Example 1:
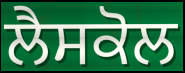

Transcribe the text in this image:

ਲੈਸਕੋਲ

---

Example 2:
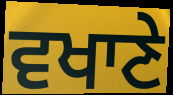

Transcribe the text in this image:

ਵਖਾਣੇ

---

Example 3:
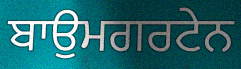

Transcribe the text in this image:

ਬਾਉਮਗਰਟੇਨ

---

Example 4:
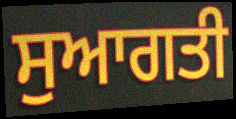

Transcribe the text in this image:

ਸੁਆਗਤੀ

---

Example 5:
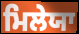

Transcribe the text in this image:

ਮਿਲੇਯਾ